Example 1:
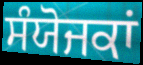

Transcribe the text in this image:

ਸੰਯੋਜਕਾਂ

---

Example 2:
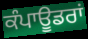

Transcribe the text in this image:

ਕੰਪਾਊਡਰਾਂ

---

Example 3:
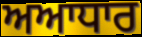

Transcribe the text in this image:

ਅਆਧਾਰ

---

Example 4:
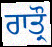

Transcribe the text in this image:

ਰਾਤ੍ਰੌ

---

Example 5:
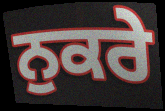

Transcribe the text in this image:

ਨੁਕਰੇ